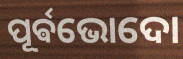
ପୂର୍ଵଭୋଦୋ